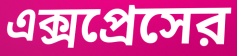
এক্সপ্রেসের